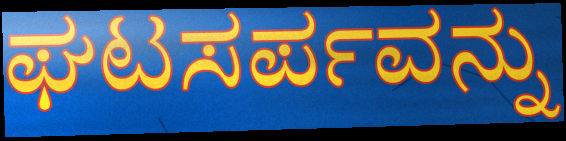
ಘಟಸರ್ಪವನ್ನು